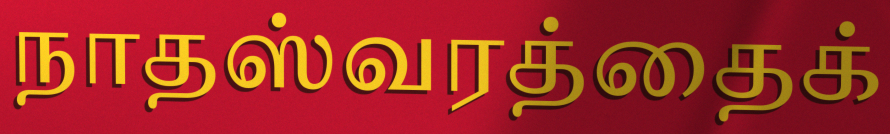
நாதஸ்வரத்தைக்